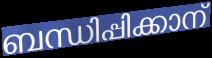
ബന്ധിപ്പിക്കാന്